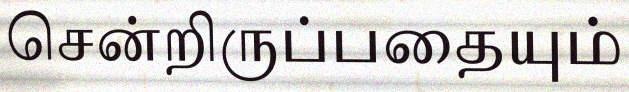
சென்றிருப்பதையும்